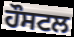
ਹੌਸਟਲ